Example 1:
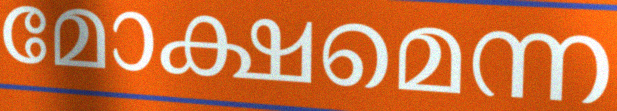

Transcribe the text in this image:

മോക്ഷമെന്ന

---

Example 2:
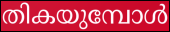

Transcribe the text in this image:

തികയുമ്പോൾ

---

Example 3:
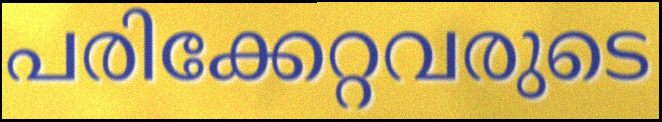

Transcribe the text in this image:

പരിക്കേറ്റവരുടെ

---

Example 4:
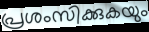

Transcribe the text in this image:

പ്രശംസിക്കുകയും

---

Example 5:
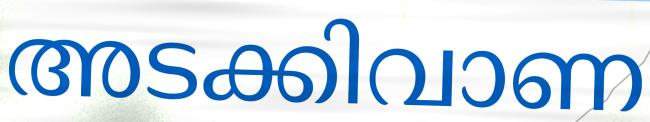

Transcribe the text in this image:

അടക്കിവാണ